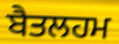
ਬੈਤਲਹਮ